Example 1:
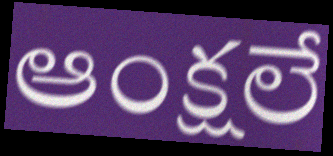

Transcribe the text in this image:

ఆంక్షలే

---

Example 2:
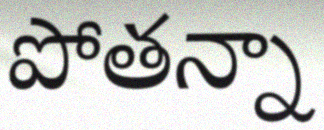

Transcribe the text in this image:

పోతన్నా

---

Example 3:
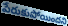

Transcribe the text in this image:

పేరుకుపోయిందని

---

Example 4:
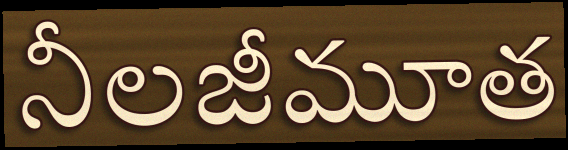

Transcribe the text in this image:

నీలజీమూత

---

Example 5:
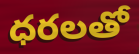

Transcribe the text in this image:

ధరలతో